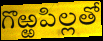
గొఱ్ఱపిల్లతో